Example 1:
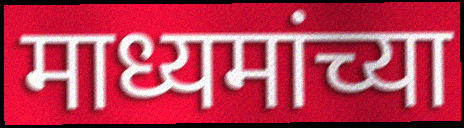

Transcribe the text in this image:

माध्यमांच्या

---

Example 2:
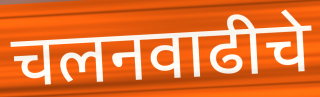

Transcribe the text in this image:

चलनवाढीचे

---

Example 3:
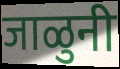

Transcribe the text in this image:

जाळुनी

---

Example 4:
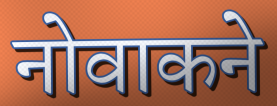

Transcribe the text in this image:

नोवाकने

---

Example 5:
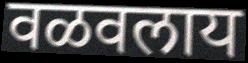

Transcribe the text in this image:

वळवलाय